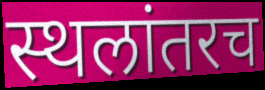
स्थलांतरच